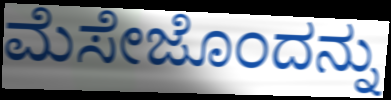
ಮೆಸೇಜೊಂದನ್ನು